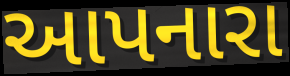
આપનારા